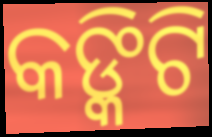
କଙ୍କିଟି